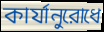
কার্যানুরোধে